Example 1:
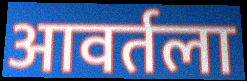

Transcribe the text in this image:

आवर्तला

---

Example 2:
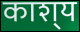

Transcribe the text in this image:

काश्य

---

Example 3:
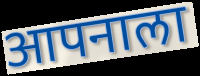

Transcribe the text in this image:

आपनाला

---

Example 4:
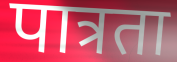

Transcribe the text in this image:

पात्रता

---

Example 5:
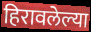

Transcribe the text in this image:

हिरावलेल्या